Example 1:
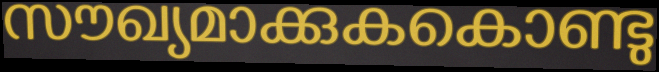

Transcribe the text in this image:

സൗഖ്യമാക്കുകകൊണ്ടു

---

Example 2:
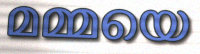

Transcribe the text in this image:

മമ്മയെ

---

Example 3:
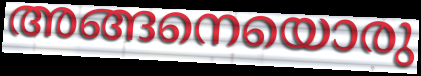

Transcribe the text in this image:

അങ്ങനെയൊരു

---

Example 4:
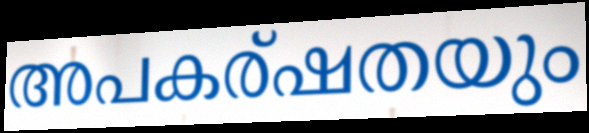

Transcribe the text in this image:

അപകര്ഷതയും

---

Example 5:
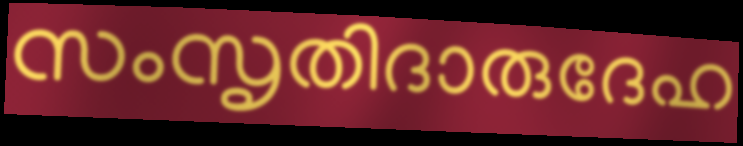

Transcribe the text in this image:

സംസൃതിദാരുദേഹ